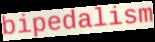
bipedalism